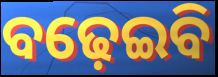
ବଢ଼େଇବି